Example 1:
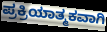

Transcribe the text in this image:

ಪ್ರಕ್ರಿಯಾತ್ಮಕವಾಗಿ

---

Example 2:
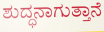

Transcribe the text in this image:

ಶುದ್ಧನಾಗುತ್ತಾನೆ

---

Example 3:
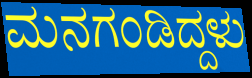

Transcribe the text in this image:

ಮನಗಂಡಿದ್ದಳು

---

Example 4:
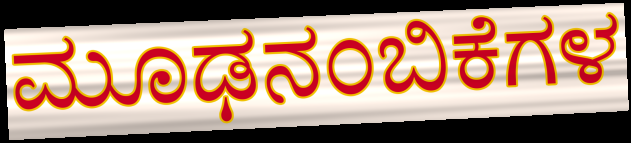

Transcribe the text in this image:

ಮೂಢನಂಬಿಕೆಗಳ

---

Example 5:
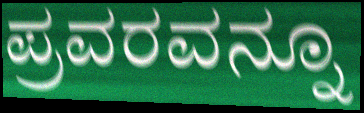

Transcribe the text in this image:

ಪ್ರವರವನ್ನೂ